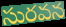
సురవన